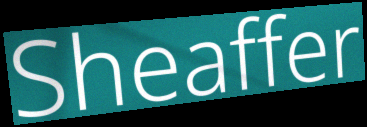
Sheaffer